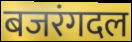
बजरंगदल